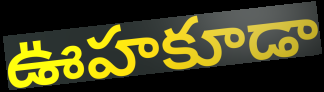
ఊహకూడా